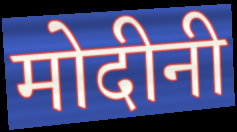
मोदीनी